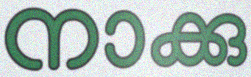
നാക്കു